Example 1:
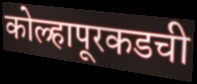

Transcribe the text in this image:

कोल्हापूरकडची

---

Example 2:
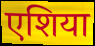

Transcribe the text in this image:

एशिया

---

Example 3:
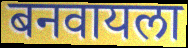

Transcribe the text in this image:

बनवायला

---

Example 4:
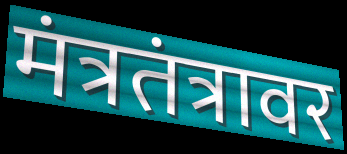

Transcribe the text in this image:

मंत्रतंत्रावर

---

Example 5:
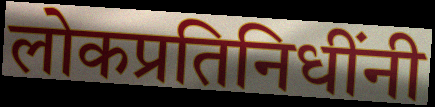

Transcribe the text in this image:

लोकप्रतिनिधींनी